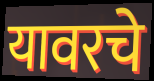
यावरचे